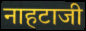
नाहटाजी